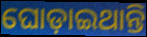
ଘୋଡ଼ାଇଥାନ୍ତି